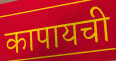
कापायची